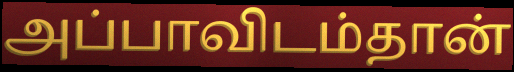
அப்பாவிடம்தான்